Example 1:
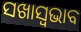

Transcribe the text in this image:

ସଖାସ୍ୱଭାବ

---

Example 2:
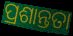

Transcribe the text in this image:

ପ୍ରଶାନ୍ତତା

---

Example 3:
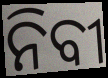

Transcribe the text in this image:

ନିବୀ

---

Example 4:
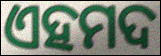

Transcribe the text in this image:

ଏହମଦ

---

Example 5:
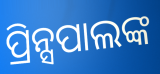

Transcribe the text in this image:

ପ୍ରିନ୍ସପାଲଙ୍କ